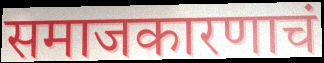
समाजकारणाचं